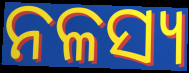
ନଳସ୍ୟ